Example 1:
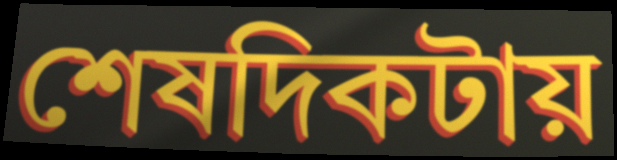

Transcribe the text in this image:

শেষদিকটায়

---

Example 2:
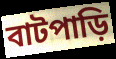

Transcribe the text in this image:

বাটপাড়ি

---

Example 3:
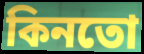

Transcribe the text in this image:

কিনতো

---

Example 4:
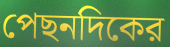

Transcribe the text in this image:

পেছনদিকের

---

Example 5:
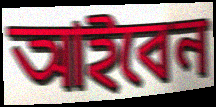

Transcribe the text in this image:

আইবেন